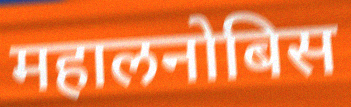
महालनोबिस